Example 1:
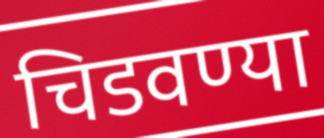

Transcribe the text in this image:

चिडवण्या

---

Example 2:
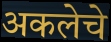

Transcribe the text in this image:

अकलेचे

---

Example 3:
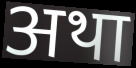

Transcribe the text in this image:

अथा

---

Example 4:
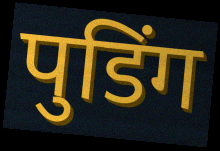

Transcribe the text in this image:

पुडिंग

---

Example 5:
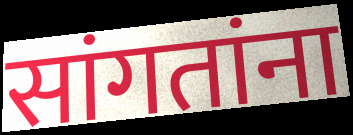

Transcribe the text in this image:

सांगतांना